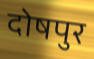
दोषपुर